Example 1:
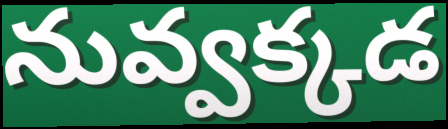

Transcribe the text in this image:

నువ్వక్కడ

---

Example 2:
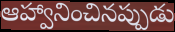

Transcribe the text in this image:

ఆహ్వానించినప్పుడు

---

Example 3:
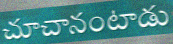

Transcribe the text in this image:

చూచానంటాడు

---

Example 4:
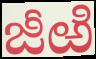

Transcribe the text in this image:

జీఱి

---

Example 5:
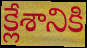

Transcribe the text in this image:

క్లేశానికి